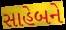
સાહેબને